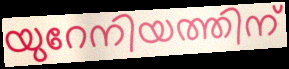
യുറേനിയത്തിന്